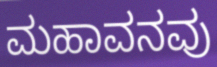
ಮಹಾವನವು